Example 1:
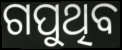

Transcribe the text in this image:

ଗପୁଥିବ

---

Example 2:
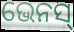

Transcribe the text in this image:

ଭେନସ୍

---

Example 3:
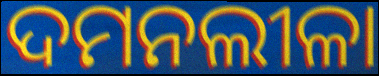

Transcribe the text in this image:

ଦମନଲୀଳା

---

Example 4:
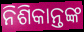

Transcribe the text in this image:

ନିଶିକାନ୍ତଙ୍କ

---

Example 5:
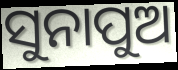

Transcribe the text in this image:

ସୁନାପୁଅ